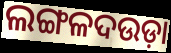
ଲଙ୍ଗଳଦଉଡ଼ା